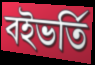
বইভর্তি